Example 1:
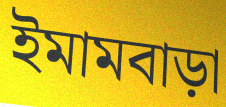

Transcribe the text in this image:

ইমামবাড়া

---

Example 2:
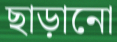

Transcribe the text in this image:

ছাড়ানো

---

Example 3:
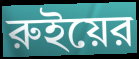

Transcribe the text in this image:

রুইয়ের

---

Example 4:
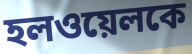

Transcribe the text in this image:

হলওয়েলকে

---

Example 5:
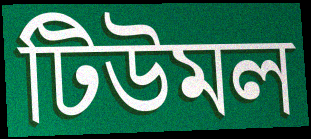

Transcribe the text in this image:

টিউমল